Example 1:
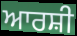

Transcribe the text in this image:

ਆਰਸ਼ੀ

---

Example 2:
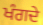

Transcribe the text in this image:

ਖੰਗਦੇ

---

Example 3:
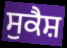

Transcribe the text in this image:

ਸੁਕੈਸ਼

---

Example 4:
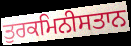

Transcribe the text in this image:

ਤੁਰਕਮਿਨੀਸਤਾਨ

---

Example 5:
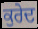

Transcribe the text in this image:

ਕੁਰੇਦ